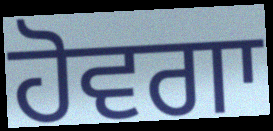
ਹੋਵਗਾ